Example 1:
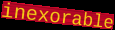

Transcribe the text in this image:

inexorable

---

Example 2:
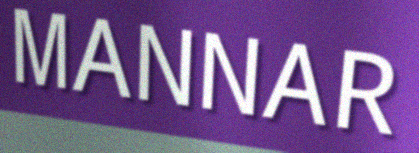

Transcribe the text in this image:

MANNAR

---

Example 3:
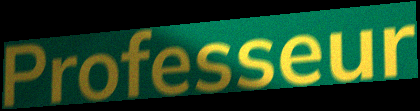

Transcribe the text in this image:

Professeur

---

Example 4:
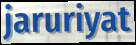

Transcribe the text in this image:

jaruriyat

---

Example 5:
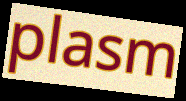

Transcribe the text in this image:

plasm